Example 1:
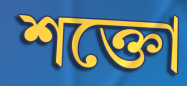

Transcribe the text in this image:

শক্তো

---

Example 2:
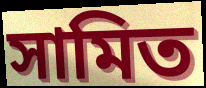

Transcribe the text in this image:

সামিত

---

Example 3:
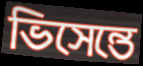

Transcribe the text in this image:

ভিসেন্তে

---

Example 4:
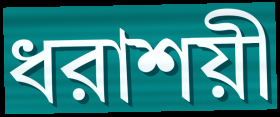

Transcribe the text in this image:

ধরাশয়ী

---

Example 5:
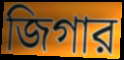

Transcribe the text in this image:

জিগার